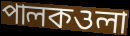
পালকওলা